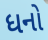
ધનો